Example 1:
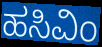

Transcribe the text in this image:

ಹಸಿವಿಂ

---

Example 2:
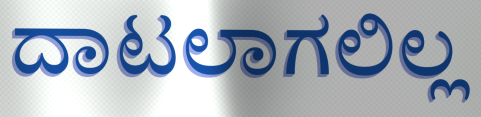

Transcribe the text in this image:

ದಾಟಲಾಗಲಿಲ್ಲ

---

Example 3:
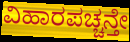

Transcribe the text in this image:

ವಿಹಾರಪಚ್ಚನ್ತೇ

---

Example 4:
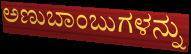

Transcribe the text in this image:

ಅಣುಬಾಂಬುಗಳನ್ನು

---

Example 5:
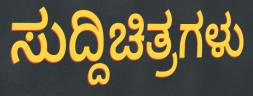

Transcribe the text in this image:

ಸುದ್ದಿಚಿತ್ರಗಳು